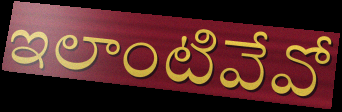
ఇలాంటివేవో